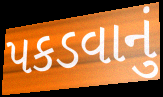
પકડવાનું